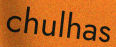
chulhas